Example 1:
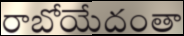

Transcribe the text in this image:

రాబోయేదంతా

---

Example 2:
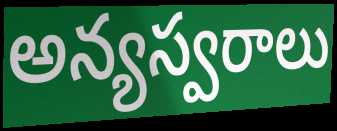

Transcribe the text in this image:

అన్యస్వరాలు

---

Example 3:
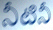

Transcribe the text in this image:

నీటినీ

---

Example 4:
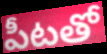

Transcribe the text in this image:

పీటతో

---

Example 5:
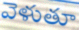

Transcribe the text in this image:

వెళుతూ